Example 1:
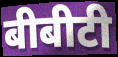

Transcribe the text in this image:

बीबीटी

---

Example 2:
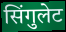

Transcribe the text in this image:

सिंगुलेट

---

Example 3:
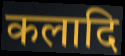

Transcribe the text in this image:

कलादि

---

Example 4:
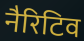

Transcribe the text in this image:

नैरिटिव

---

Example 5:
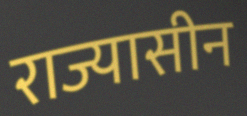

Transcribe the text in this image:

राज्यासीन